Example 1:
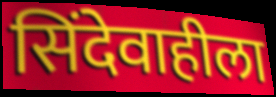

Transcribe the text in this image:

सिंदेवाहीला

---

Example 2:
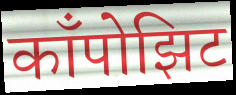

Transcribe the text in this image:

काँपोझिट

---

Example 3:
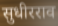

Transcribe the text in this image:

सुधीरराव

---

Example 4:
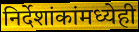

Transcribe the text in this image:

निर्देशांकांमध्येही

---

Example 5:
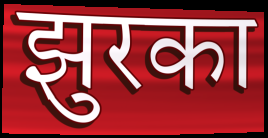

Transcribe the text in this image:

झुरका